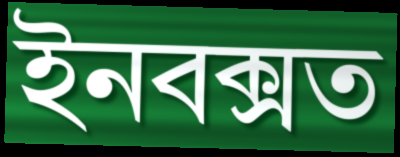
ইনবক্সত